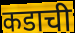
कडाची